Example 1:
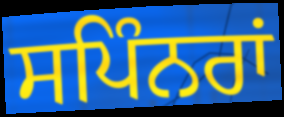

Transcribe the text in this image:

ਸਪਿੰਨਰਾਂ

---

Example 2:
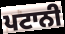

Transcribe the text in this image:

ਪਟਾਨੀ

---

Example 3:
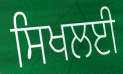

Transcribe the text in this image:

ਸਿਖਲਈ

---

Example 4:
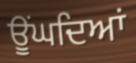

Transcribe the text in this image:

ਊਂਘਦਿਆਂ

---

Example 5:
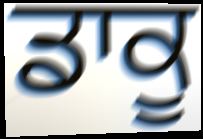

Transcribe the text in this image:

ਡਾਕੂ